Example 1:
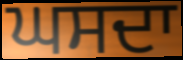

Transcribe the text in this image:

ਘਸਦਾ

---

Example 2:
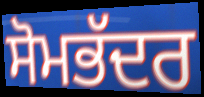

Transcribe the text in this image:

ਸੋਮਭੱਦਰ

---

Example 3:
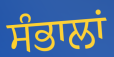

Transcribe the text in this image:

ਸੰਭਾਲਾਂ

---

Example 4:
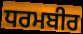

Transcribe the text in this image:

ਧਰਮਬੀਰ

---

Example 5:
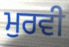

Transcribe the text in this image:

ਮੁਰਵੀ